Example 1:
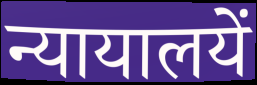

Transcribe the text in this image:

न्यायालयें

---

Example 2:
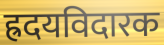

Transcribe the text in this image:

ह्रदयविदारक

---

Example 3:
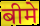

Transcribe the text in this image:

बीमे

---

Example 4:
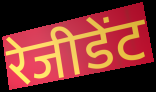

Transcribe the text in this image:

रेजीडेंट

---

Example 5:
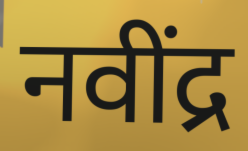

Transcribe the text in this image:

नवींद्र